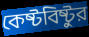
কেষ্টবিষ্টুর